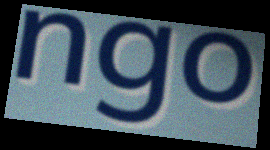
ngo